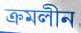
ক্রমলীন